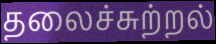
தலைச்சுற்றல்